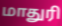
மாதுரி